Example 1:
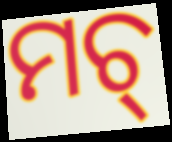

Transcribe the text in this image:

ମଚ୍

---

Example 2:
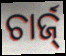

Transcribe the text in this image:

ଚାର୍ଜ୍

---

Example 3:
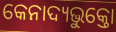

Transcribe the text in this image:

କେନାଦ୍ୟଭୁକ୍ତୋ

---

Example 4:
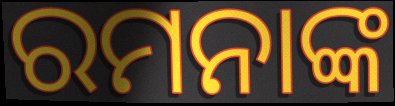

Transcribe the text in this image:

ରମନାଙ୍କ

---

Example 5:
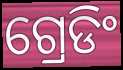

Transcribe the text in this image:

ଗ୍ରେଡିଂ